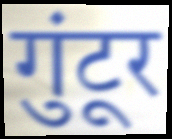
गुंटूर